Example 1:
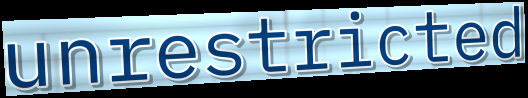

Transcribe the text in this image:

unrestricted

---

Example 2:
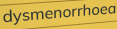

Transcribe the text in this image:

dysmenorrhoea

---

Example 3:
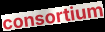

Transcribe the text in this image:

consortium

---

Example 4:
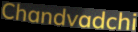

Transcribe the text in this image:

Chandvadchi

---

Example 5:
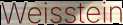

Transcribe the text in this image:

Weisstein